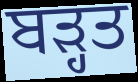
ਬੜ੍ਹਤ